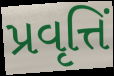
પ્રવૃત્તિં